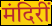
मंदिरीं